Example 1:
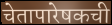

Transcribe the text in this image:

चेतापारेषकची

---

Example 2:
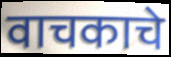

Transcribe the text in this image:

वाचकाचे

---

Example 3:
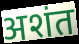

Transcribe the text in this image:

अशंत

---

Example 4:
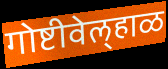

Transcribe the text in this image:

गोष्टीवेल्हाळ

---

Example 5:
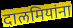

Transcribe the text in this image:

दालमियांना